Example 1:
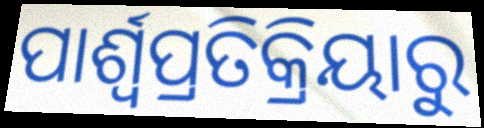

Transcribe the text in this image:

ପାର୍ଶ୍ୱପ୍ରତିକ୍ରିୟାରୁ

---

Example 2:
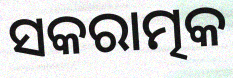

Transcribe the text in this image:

ସକରାତ୍ମକ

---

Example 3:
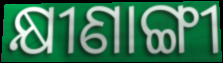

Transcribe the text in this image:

କ୍ଷୀଣାଙ୍ଗୀ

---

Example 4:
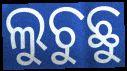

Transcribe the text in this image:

ଲୁଚୁଛୁ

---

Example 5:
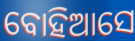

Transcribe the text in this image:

ବୋହିଆସେ